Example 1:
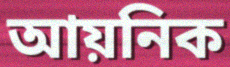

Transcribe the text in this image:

আয়নিক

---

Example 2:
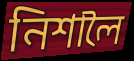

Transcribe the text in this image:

নিশালৈ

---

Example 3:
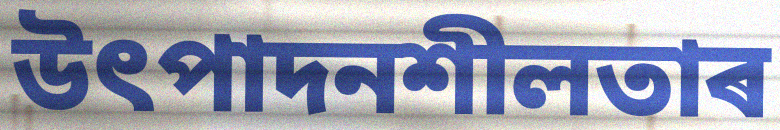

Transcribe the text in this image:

উৎপাদনশীলতাৰ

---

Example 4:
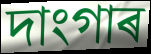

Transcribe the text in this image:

দাংগাৰ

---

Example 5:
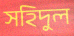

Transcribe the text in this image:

সহিদুল